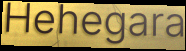
Hehegara